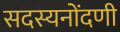
सदस्यनोंदणी